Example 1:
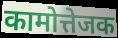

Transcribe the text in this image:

कामोत्तेजक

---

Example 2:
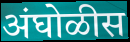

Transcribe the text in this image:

अंघोळीस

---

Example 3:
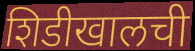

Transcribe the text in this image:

शिडीखालची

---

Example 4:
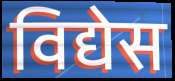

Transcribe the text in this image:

विद्येस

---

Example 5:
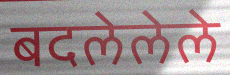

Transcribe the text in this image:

बदलेलेले